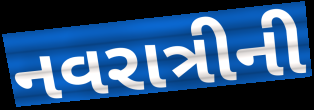
નવરાત્રીની